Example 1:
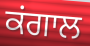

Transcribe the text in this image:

ਕਂਗਾਲ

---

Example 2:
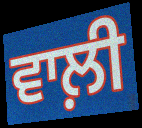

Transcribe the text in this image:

ਵਾਲ਼ੀ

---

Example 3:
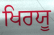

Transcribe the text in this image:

ਖਿਰਯੂ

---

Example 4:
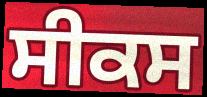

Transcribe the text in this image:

ਸੀਕਸ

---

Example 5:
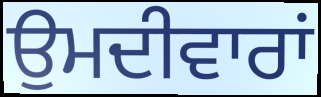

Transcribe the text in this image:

ਉਮਦੀਵਾਰਾਂ